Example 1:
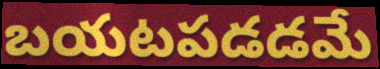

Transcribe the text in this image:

బయటపడడమే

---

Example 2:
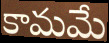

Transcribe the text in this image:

కామమే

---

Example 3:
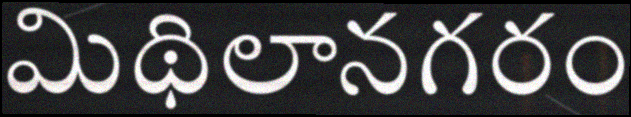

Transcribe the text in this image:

మిథిలానగరం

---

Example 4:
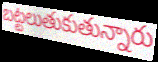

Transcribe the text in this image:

బట్టలుతుకుతున్నారు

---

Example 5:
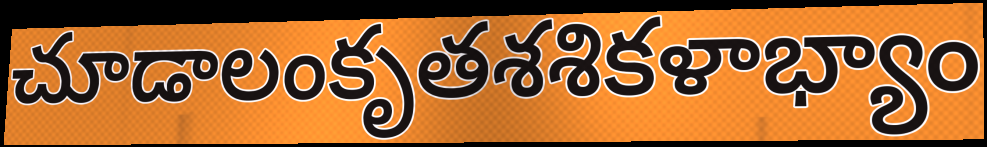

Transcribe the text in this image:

చూడాలంకృతశశికళాభ్యాం